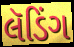
લૅડિંગ